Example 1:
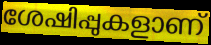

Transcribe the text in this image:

ശേഷിപ്പുകളാണ്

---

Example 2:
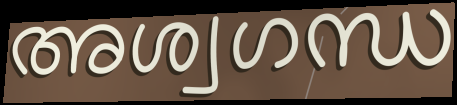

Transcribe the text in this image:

അശ്വഗന്ധ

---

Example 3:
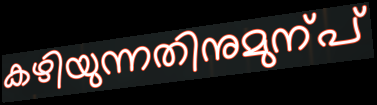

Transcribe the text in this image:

കഴിയുന്നതിനുമുന്പ്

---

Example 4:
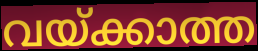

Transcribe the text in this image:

വയ്ക്കാത്ത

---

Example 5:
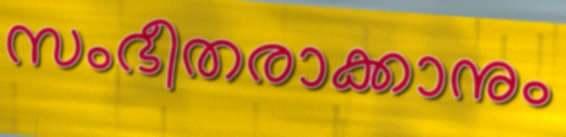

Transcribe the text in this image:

സംഭീതരാക്കാനും